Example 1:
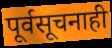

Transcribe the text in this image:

पूर्वसूचनाही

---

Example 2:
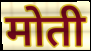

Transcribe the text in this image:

मोती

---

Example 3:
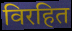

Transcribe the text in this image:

विरहित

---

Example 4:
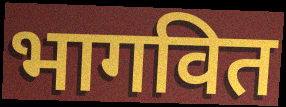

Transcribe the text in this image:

भागवित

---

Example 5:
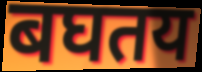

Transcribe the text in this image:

बघतय